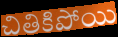
చితికిపోయి